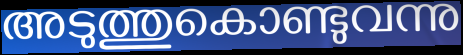
അടുത്തുകൊണ്ടുവന്നു